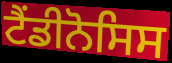
ਟੈਂਡੀਨੋਸਿਸ